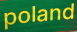
poland